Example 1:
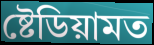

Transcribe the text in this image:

ষ্টেডিয়ামত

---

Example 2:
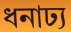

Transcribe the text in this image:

ধনাঢ্য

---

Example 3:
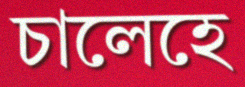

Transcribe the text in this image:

চালেহে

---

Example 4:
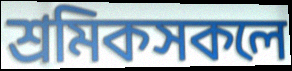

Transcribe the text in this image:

শ্ৰমিকসকলে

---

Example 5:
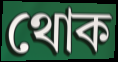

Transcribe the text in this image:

থোক